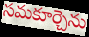
సమకూర్చెను